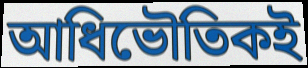
আধিভৌতিকই